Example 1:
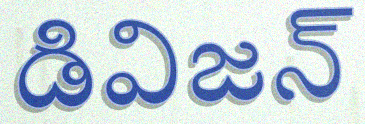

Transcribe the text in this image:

డివిజన్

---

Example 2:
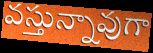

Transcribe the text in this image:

వస్తున్నావుగా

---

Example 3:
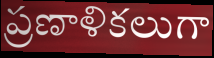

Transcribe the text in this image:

ప్రణాళికలుగా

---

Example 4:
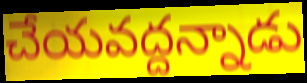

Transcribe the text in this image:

చేయవద్దన్నాడు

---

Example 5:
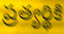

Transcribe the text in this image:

ప్రత్యర్థికి